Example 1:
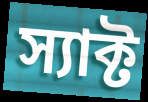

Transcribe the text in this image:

স্যাক্ট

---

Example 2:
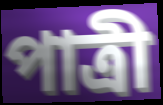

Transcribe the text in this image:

পাত্রী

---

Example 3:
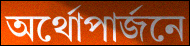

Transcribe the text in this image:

অর্থোপার্জনে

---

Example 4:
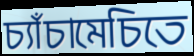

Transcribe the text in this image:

চ্যাঁচামেচিতে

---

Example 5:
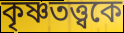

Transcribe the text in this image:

কৃষ্ণতত্ত্বকে